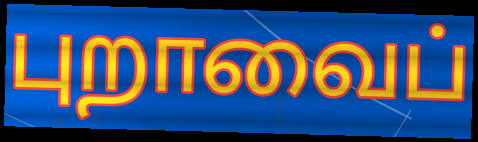
புறாவைப்